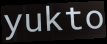
yukto